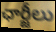
ఛార్జీలు